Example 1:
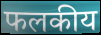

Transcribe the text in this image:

फलकीय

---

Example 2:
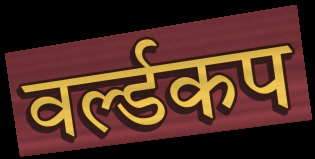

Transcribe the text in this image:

वर्ल्‍डकप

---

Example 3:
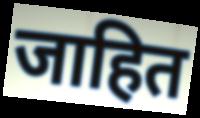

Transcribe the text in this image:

जाहित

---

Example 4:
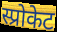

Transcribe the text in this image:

स्प्रोकेट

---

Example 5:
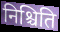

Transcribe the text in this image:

निश्चिति